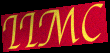
IIMC